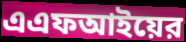
এএফআইয়ের